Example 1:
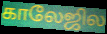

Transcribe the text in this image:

காலேஜில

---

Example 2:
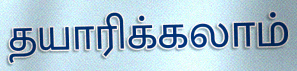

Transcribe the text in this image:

தயாரிக்கலாம்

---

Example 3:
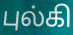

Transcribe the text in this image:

புல்கி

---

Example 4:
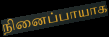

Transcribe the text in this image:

நினைப்பாயாக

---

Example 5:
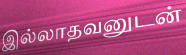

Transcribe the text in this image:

இல்லாதவனுடன்